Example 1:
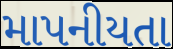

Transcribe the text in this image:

માપનીયતા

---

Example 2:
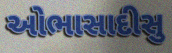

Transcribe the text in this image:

ઓભાસાદીસુ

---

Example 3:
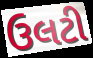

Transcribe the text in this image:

ઉલટી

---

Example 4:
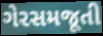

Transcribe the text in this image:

ગેરસમજૂતી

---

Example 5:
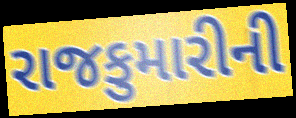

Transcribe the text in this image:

રાજકુમારીની